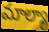
మాల్యా